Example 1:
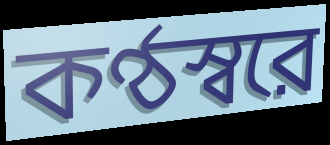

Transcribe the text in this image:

কণ্ঠস্বরে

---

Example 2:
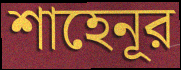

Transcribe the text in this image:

শাহেনূর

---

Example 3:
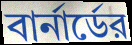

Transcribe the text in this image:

বার্নার্ডের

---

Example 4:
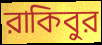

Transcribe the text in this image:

রাকিবুর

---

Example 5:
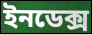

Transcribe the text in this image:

ইনডেক্স